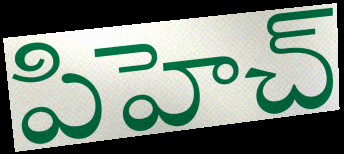
పిహెచ్